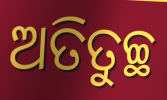
ଅତିତୁଚ୍ଛ